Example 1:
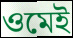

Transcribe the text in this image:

ওমেই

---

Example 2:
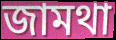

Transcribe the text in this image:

জামথা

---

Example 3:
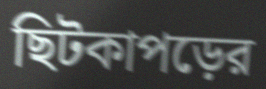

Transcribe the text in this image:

ছিটকাপড়ের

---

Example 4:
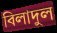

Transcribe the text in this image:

বিলাদুল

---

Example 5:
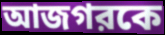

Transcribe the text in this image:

আজগরকে